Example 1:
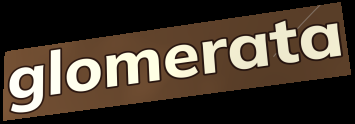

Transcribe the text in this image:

glomerata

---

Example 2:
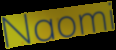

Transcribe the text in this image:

Naomi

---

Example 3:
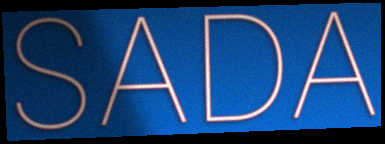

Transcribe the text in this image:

SADA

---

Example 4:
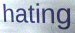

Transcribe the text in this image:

hating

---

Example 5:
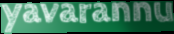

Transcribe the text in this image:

yavarannu